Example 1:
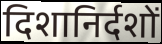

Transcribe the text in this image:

दिशानिर्दशों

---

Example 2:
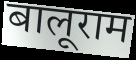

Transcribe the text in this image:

बालूराम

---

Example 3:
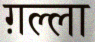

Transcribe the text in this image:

ग़ल्ला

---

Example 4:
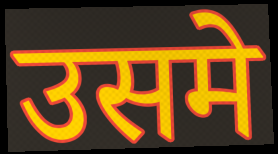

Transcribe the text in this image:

उसमे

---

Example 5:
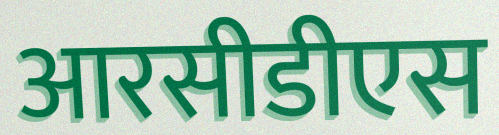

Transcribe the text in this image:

आरसीडीएस